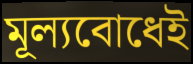
মূল্যবোধেই